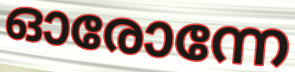
ഓരോന്നേ